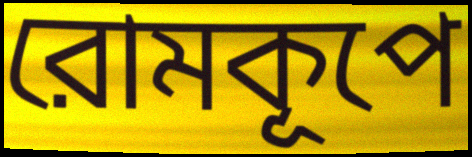
রোমকূপে